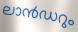
ലാൻഡറും